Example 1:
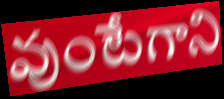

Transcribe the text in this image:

వుంటేగాని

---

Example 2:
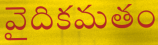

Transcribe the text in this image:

వైదికమతం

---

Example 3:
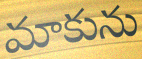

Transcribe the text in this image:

మాకును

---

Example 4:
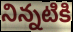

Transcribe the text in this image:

నిన్నటికి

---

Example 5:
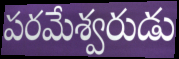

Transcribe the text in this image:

పరమేశ్వరుడు